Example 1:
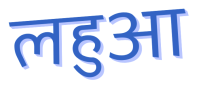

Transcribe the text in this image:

लहुआ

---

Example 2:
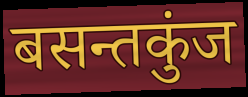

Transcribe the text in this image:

बसन्तकुंज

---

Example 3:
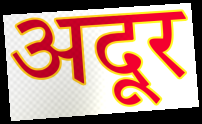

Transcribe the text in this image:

अदूर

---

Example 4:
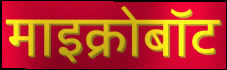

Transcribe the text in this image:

माइक्रोबॉट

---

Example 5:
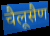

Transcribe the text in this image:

चैलूसैण